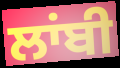
ਲਾਂਬੀ